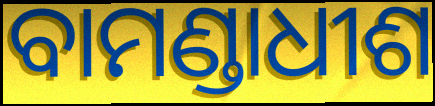
ବାମଣ୍ଡାଧୀଶ